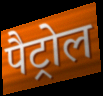
पैट्रोल